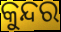
କୁନ୍ଦର